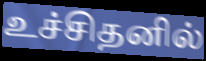
உச்சிதனில்